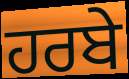
ਹਰਬੇ